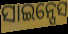
ସାଇନ୍ସେସ